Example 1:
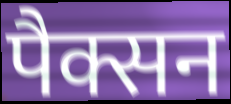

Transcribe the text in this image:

पैक्सन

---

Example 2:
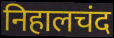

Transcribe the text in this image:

निहालचंद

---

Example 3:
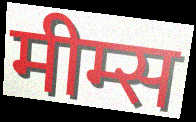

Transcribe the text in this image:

मीम्‍स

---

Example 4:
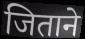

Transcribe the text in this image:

जिताने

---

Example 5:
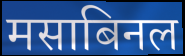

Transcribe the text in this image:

मसाबिनल